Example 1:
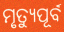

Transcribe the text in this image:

ମୃତ୍ୟୁପୂର୍ବ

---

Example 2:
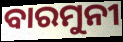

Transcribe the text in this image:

ବାରମୁନୀ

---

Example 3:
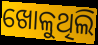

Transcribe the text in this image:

ଖୋଳୁଥିଲି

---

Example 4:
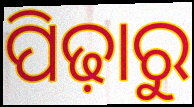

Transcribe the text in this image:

ପିଢ଼ାରୁ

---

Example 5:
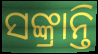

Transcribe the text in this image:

ସଙ୍କ୍ରାନ୍ତି